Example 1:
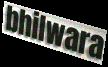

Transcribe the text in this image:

bhilwara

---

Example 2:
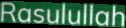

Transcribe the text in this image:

Rasulullah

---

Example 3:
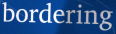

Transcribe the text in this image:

bordering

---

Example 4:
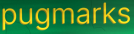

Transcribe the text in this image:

pugmarks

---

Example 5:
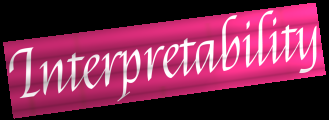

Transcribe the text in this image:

Interpretability